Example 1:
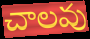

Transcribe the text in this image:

చాలవు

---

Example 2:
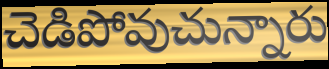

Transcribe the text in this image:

చెడిపోవుచున్నారు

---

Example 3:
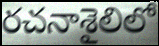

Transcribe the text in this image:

రచనాశైలిలో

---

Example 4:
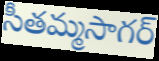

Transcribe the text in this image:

సీతమ్మసాగర్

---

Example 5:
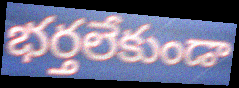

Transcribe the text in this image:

భర్తలేకుండా